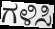
ಗಳಿಸಿ